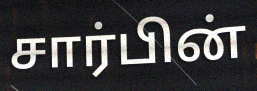
சார்பின்